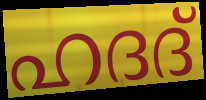
ഹദദ്